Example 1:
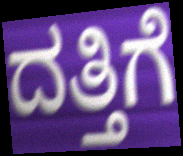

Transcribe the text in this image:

ದತ್ತಿಗೆ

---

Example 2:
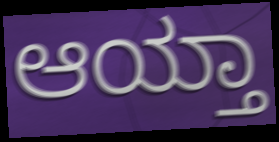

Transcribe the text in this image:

ಆಯ್ತಾ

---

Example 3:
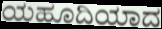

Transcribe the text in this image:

ಯಹೂದಿಯಾದ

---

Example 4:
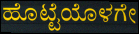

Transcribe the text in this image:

ಹೊಟ್ಟೆಯೊಳಗೇ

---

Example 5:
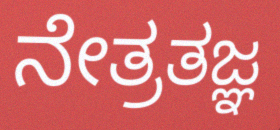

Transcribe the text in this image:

ನೇತ್ರತಜ್ಞ